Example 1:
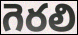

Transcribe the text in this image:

గెరలి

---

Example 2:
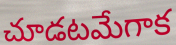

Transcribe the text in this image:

చూడటమేగాక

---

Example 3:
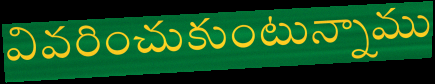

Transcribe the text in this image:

వివరించుకుంటున్నాము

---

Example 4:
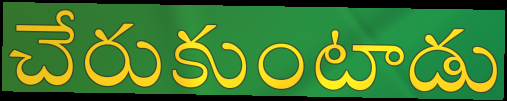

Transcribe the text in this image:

చేరుకుంటాడు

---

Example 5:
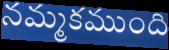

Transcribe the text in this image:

నమ్మకముంది